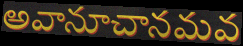
అవానూచానమవ